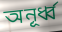
অনূর্ধ্ব